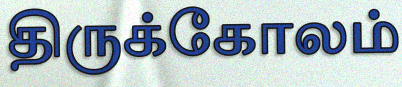
திருக்கோலம்